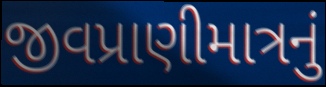
જીવપ્રાણીમાત્રનું